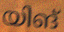
യിങ്